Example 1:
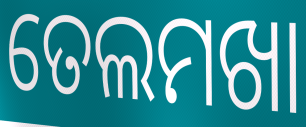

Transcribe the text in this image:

ତେଲମଖା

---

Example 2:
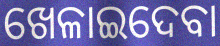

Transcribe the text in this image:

ଖେଳାଇଦେବା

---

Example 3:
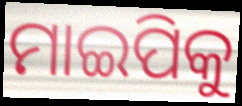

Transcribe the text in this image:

ମାଇପିକୁ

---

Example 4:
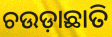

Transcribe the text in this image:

ଚଉଡ଼ାଛାତି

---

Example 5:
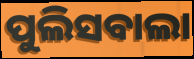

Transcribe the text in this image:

ପୁଲିସବାଲା